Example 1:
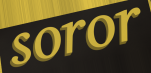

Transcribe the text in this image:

soror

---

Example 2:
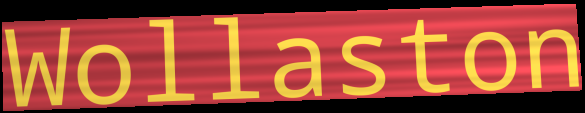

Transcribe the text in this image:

Wollaston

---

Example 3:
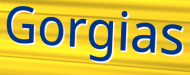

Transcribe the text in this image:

Gorgias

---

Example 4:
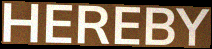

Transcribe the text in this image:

HEREBY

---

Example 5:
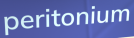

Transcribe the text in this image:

peritonium